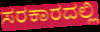
ಸರಕಾರದಲ್ಲಿ